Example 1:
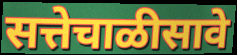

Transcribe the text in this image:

सत्तेचाळीसावे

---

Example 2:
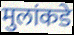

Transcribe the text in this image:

मुलांकडे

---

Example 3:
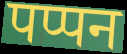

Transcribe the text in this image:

पप्पन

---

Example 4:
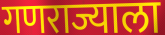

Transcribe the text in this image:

गणराज्याला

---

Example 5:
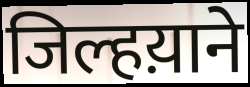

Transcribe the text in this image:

जिल्हय़ाने